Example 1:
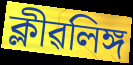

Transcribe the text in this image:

ক্লীৱলিঙ্গ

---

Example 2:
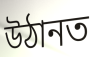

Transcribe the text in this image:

উঠানত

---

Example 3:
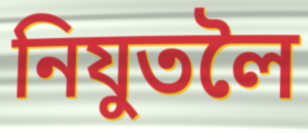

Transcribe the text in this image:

নিযুতলৈ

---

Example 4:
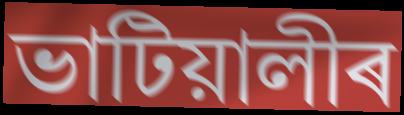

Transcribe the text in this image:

ভাটিয়ালীৰ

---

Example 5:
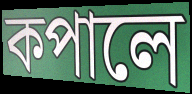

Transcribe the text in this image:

কপালে